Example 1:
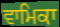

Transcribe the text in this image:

ਵਾਮਿਕਾ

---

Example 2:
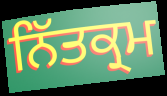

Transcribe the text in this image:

ਨਿੱਤਕ੍ਰਮ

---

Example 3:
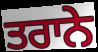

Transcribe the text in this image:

ਤਰਾਨੇ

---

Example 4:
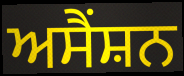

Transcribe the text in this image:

ਅਸੈਂਸ਼ਨ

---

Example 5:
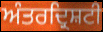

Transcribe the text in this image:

ਅੰਤਰਦ੍ਰਿਸ਼ਟੀ